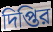
দিপ্তির